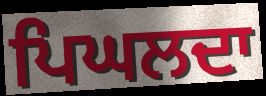
ਪਿਘਲਦਾ